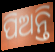
ପିଅନ୍ତି